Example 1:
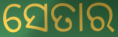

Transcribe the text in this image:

ସେତାର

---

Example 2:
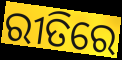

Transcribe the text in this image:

ରୀତିରେ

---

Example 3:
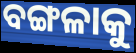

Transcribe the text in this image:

ବଙ୍ଗଳାକୁ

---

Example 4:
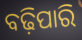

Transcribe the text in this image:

ବଢ଼ିପାରି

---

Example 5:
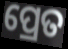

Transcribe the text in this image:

ପ୍ରେତ